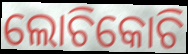
ଲୋଚିକୋଚି